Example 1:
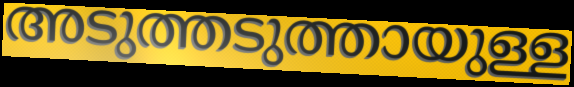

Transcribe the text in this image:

അടുത്തടുത്തായുള്ള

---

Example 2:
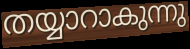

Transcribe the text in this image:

തയ്യാറാകുന്നു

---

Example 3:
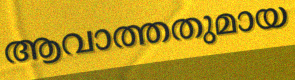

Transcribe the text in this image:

ആവാത്തതുമായ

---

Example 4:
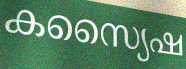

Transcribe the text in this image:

കസ്യൈഷ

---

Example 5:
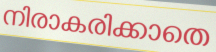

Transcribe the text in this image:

നിരാകരിക്കാതെ